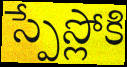
స్పేస్లోకి